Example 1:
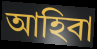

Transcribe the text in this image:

আহিবা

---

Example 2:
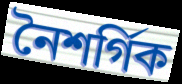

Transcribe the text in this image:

নৈশৰ্গিক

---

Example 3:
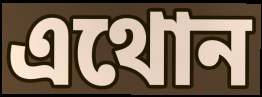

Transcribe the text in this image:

এথোন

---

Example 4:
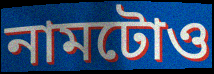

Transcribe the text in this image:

নামটোও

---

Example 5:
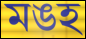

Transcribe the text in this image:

মঙহ